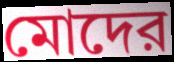
মোদের